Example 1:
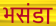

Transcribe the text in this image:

भसंडा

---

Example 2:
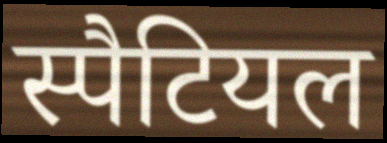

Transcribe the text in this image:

स्पैटियल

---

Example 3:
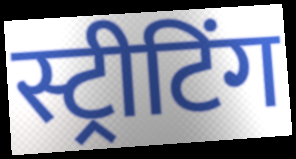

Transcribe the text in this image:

स्ट्रीटिंग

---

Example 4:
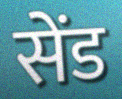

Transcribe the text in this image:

सेंड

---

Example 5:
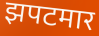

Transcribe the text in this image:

झपटमार